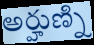
అర్హుణ్ని